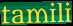
tamili